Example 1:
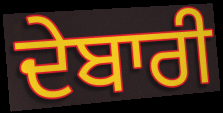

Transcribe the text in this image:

ਦੇਬਾਰੀ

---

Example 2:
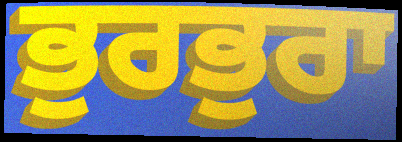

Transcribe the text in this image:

ਭੁਰਭੁਰਾ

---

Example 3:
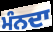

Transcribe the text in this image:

ਮੰਨਦਾ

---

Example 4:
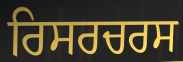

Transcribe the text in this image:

ਰਿਸਰਚਰਸ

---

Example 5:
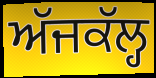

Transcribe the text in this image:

ਅੱਜਕੱਲ੍ਹ